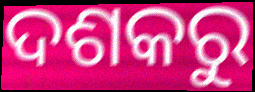
ଦଶକରୁ